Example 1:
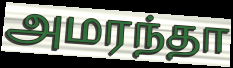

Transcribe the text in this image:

அமரந்தா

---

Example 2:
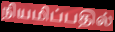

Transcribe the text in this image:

நியமிப்பதில்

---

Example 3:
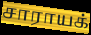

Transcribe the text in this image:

சாராயக்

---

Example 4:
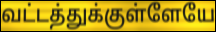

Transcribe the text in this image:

வட்டத்துக்குள்ளேயே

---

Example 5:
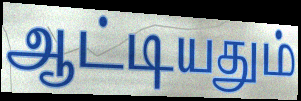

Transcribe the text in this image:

ஆட்டியதும்